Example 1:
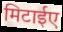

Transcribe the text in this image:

मिटाईए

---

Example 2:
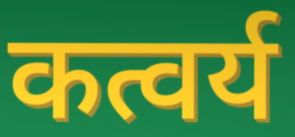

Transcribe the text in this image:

कत्वर्य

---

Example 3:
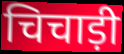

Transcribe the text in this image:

चिचाड़ी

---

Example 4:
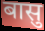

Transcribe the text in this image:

बासु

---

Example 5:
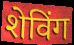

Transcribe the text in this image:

शेविंग